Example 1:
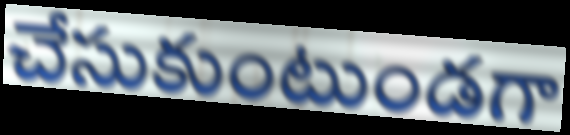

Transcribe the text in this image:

చేసుకుంటుండగా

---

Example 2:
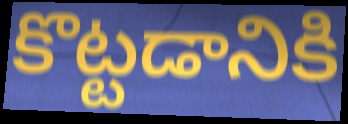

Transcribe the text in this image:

కొట్టడానికి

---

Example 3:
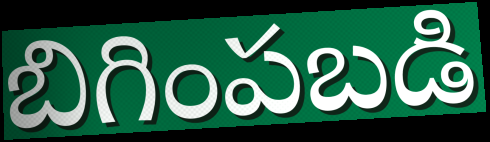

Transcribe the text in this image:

బిగింపబడి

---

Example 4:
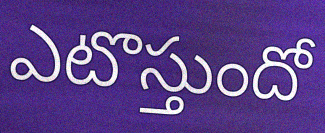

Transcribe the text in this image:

ఎటొస్తుందో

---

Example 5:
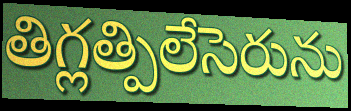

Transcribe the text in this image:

తిగ్లత్పిలేసెరును